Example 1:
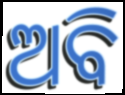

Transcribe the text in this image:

ଅବି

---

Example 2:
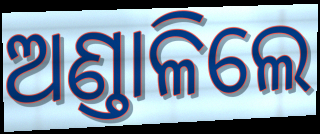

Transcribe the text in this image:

ଅଣ୍ଡାଳିଲେ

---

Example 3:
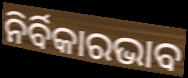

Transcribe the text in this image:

ନିର୍ବିକାରଭାବ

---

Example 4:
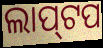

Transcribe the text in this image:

ଲାପ୍‌ଟପ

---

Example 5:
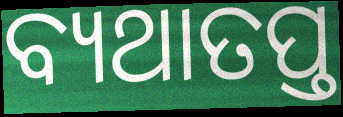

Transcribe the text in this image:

ବ୍ୟଥାତପ୍ତ